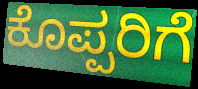
ಕೊಪ್ಪರಿಗೆ